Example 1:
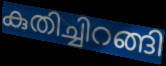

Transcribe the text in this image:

കുതിച്ചിറങ്ങി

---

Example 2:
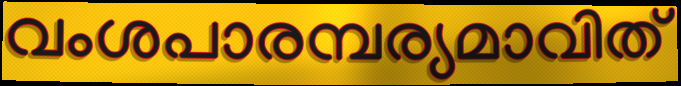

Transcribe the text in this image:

വംശപാരമ്പര്യമാവിത്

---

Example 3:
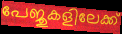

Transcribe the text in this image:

പേജുകളിലേക്ക്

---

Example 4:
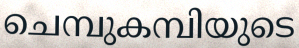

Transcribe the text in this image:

ചെമ്പുകമ്പിയുടെ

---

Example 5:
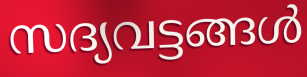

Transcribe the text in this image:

സദ്യവട്ടങ്ങൾ